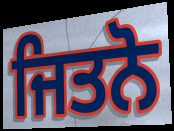
ਜਿਤਨੋ